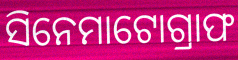
ସିନେମାଟୋଗ୍ରାଫ